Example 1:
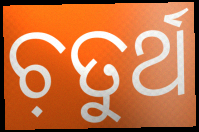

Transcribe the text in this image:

ଚ଼ତୁର୍ଥ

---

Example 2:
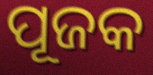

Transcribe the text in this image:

ପୂଜକ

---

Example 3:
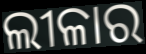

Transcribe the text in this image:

ଲୀଳାର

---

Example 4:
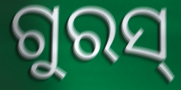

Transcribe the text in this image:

ଗୁରସ୍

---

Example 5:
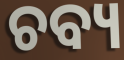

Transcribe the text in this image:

ଚବ୍ୟ